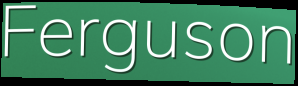
Ferguson